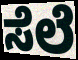
ಸೆಲೆ